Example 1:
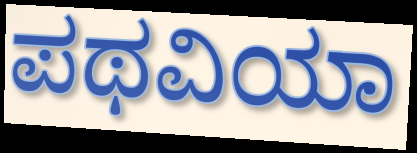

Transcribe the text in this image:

ಪಥವಿಯಾ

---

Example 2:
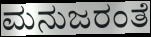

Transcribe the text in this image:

ಮನುಜರಂತೆ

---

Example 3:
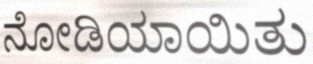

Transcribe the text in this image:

ನೋಡಿಯಾಯಿತು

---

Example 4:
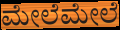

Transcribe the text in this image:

ಮೇಲೆಮೇಲೆ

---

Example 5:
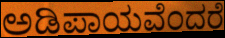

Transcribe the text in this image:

ಅಡಿಪಾಯವೆಂದರೆ